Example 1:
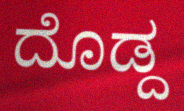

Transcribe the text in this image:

ದೊಡ್ದ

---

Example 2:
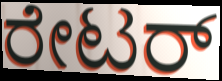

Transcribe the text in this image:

ರೇಟರ್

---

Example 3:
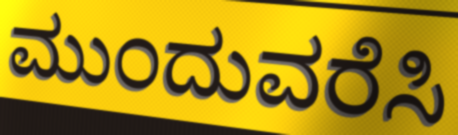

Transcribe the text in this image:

ಮುಂದುವರೆಸಿ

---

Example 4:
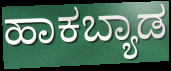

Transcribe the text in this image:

ಹಾಕಬ್ಯಾಡ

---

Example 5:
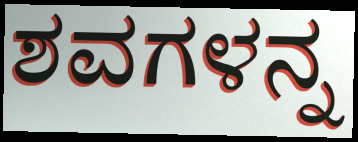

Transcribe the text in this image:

ಶವಗಳನ್ನ